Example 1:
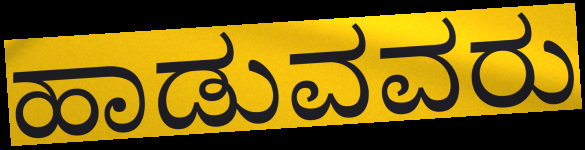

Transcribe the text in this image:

ಹಾಡುವವರು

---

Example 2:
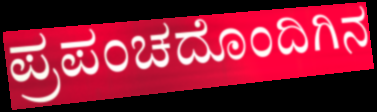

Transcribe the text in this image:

ಪ್ರಪಂಚದೊಂದಿಗಿನ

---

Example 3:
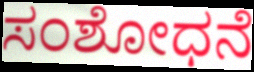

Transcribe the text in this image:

ಸಂಶೋಧನೆ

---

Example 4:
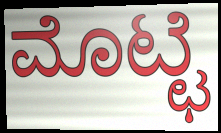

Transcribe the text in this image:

ಮೊಟ್ಟೆ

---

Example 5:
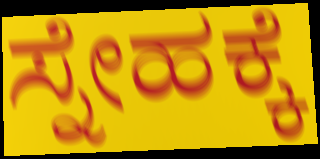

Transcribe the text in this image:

ಸ್ನೇಹಕ್ಕೆ